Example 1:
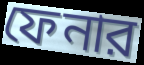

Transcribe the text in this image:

ফেনার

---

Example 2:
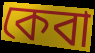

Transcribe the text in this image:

কেবা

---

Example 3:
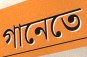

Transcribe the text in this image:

গানেতে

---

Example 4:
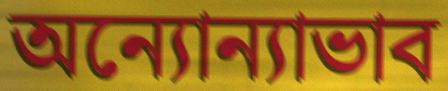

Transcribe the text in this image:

অন্যোন্যাভাব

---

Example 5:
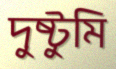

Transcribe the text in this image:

দুষ্টুমি